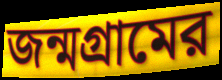
জন্মগ্রামের